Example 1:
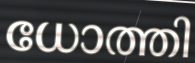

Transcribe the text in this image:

ധോത്തി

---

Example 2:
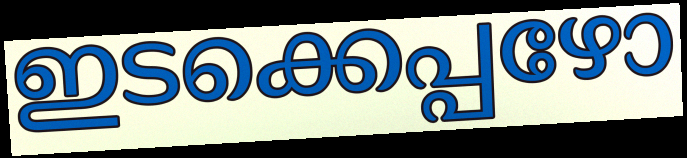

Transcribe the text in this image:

ഇടക്കെപ്പഴോ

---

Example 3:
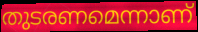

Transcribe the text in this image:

തുടരണമെന്നാണ്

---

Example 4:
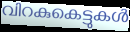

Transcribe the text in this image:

വിറകുകെട്ടുകൾ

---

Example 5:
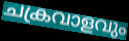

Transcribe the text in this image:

ചക്രവാളവും